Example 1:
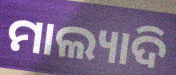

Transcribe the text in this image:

ମାଲ୍ୟାଦି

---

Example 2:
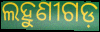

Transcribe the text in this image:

ଲହୁଣୀଗଡ଼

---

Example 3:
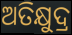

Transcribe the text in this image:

ଅତିକ୍ଷୁଦ୍ର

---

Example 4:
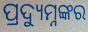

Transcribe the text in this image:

ପ୍ରଦ୍ୟୁମ୍ନଙ୍କର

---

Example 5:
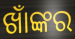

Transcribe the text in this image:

ଖାଁଙ୍କର